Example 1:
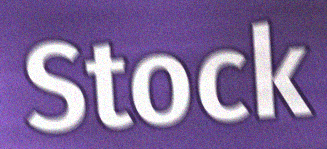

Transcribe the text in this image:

Stock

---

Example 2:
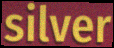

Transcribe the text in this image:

silver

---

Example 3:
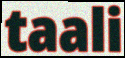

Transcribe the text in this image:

taali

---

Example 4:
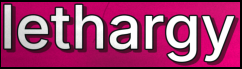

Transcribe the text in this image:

lethargy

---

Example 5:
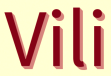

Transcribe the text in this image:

Vili